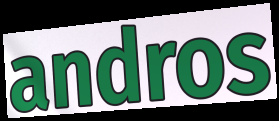
andros